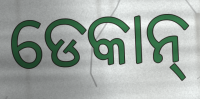
ଡେକାନ୍